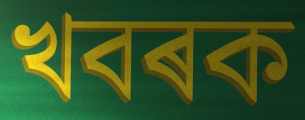
খবৰক